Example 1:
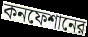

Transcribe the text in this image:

কনফেশানের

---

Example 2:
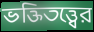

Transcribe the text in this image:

ভক্তিতত্ত্বের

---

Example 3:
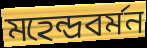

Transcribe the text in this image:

মহেন্দ্রবর্মন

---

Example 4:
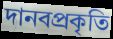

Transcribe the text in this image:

দানবপ্রকৃতি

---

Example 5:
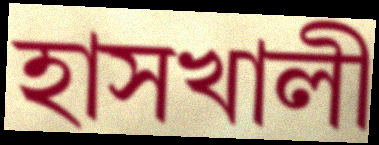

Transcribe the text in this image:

হাসখালী